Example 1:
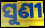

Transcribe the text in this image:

ସୁଣୀ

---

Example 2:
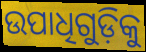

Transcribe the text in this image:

ଉପାଧିଗୁଡ଼ିକୁ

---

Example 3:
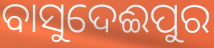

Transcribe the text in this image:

ବାସୁଦେଈପୁର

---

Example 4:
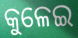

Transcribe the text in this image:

କୁଳେଇ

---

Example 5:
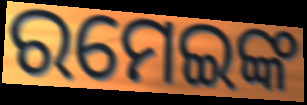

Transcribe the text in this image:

ରମେଇଙ୍କ